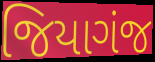
જિયાગંજ